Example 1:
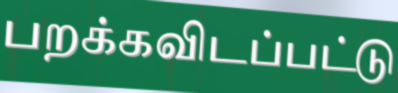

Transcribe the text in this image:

பறக்கவிடப்பட்டு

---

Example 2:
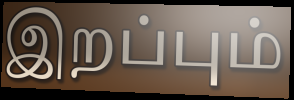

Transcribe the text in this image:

இறப்பும்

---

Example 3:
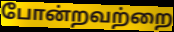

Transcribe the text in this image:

போன்றவற்றை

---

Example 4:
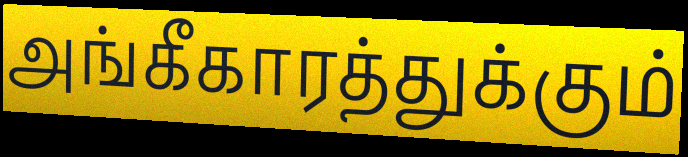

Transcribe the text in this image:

அங்கீகாரத்துக்கும்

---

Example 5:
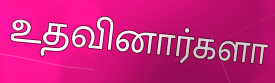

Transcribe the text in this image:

உதவினார்களா